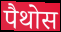
पैथोस